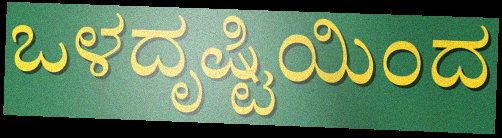
ಒಳದೃಷ್ಟಿಯಿಂದ